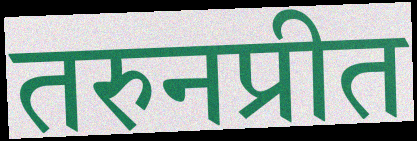
तरुनप्रीत